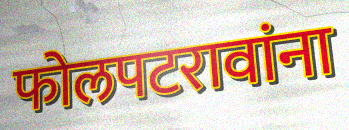
फोलपटरावांना